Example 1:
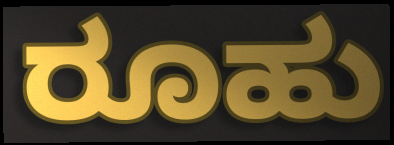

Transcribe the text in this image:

ರೂಹು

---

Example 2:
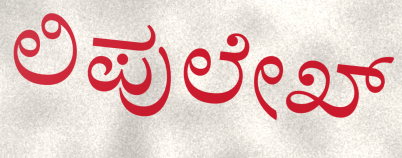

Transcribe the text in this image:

ಲಿಪುಲೇಖ್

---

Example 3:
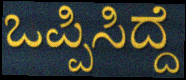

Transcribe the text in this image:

ಒಪ್ಪಿಸಿದ್ದೆ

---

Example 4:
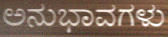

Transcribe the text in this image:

ಅನುಭಾವಗಳು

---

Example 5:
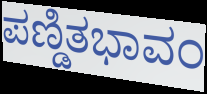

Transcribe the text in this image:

ಪಣ್ಡಿತಭಾವಂ